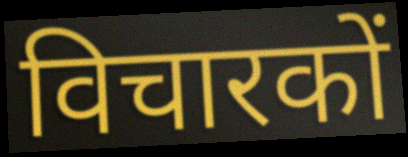
विचारकों